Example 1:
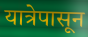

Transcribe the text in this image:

यात्रेपासून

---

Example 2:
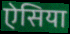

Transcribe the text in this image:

ऐसिया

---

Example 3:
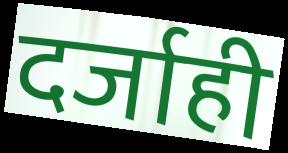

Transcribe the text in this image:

दर्जाही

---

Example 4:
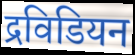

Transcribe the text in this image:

द्रविडियन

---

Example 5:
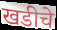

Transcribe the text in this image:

खडीचे